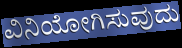
ವಿನಿಯೋಗಿಸುವುದು